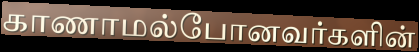
காணாமல்போனவர்களின்